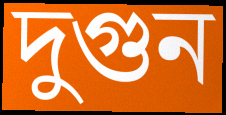
দুগুন